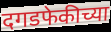
दगडफेकीच्या